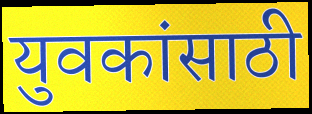
युवकांसाठी